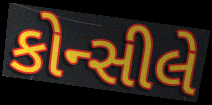
કોન્સીલે